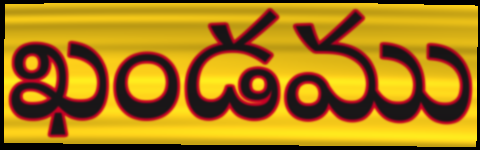
ఖండము